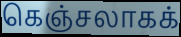
கெஞ்சலாகக்